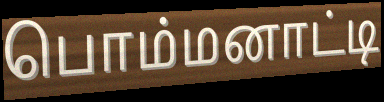
பொம்மனாட்டி